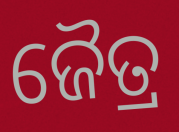
ଜୈତ୍ର